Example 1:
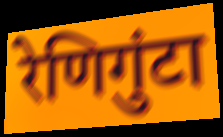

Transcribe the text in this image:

रेणिगुंटा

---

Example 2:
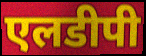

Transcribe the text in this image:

एलडीपी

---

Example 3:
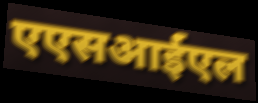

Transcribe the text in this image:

एएसआईएल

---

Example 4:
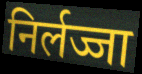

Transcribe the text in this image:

निर्लज्जा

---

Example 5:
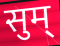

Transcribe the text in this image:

सुम्